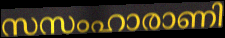
സസംഹാരാണി